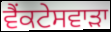
ਵੈਂਕਟੇਸਵਾੜਾ